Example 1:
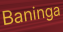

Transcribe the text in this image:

Baninga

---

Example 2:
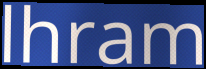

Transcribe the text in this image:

lhram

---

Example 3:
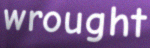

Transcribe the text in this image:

wrought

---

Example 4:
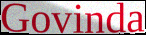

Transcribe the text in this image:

Govinda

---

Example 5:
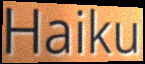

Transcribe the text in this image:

Haiku